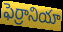
ఫెర్రానియా